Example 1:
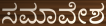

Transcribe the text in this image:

ಸಮಾವೇಶ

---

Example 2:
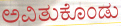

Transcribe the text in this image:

ಅವಿತುಕೊಂಡು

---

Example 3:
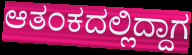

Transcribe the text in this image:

ಆತಂಕದಲ್ಲಿದ್ದಾಗ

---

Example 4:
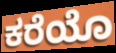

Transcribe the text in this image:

ಕರೆಯೊ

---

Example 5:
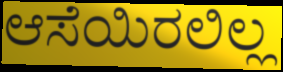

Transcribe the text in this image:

ಆಸೆಯಿರಲಿಲ್ಲ